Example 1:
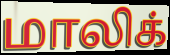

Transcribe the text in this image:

மாலிக்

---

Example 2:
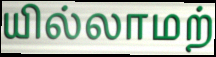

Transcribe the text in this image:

யில்லாமற்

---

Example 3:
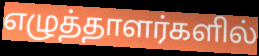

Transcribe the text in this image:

எழுத்தாளர்களில்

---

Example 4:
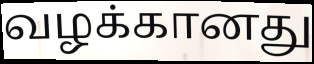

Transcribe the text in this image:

வழக்கானது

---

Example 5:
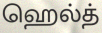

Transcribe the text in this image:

ஹெல்த்